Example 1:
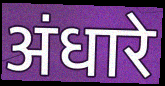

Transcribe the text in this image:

अंधारे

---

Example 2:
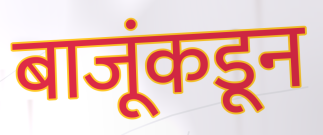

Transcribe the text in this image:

बाजूंकडून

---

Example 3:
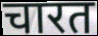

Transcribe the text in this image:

चारत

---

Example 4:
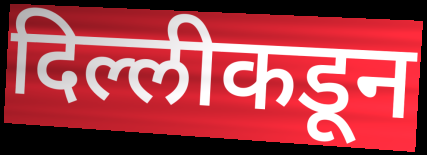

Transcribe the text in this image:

दिल्लीकडून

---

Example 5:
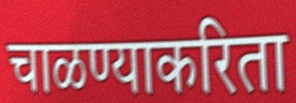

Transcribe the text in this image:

चाळण्याकरिता